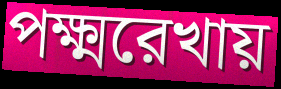
পক্ষ্মরেখায়